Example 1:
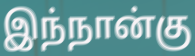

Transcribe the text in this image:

இந்நான்கு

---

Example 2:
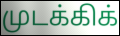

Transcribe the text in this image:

முடக்கிக்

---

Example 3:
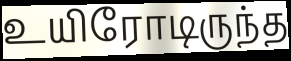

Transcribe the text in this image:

உயிரோடிருந்த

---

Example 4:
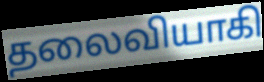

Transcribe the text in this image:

தலைவியாகி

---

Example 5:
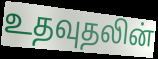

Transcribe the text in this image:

உதவுதலின்